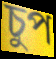
চুপ